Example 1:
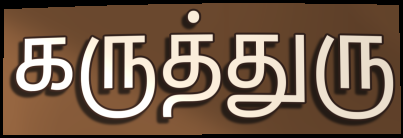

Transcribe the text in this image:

கருத்துரு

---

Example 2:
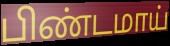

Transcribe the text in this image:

பிண்டமாய்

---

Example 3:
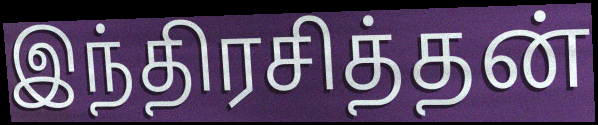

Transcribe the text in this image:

இந்திரசித்தன்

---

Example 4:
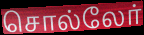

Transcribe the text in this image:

சொல்லேர்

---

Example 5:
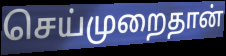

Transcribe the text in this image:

செய்முறைதான்